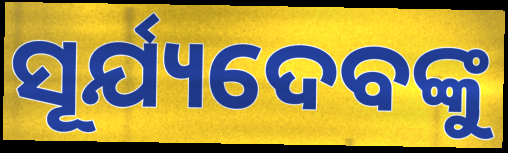
ସୂର୍ଯ୍ୟଦେବଙ୍କୁ